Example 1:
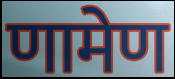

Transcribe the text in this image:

णामेण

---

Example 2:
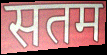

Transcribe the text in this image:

सतम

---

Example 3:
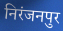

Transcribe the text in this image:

निरंजनपुर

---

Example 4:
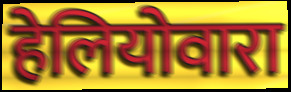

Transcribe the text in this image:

हेलियोवारा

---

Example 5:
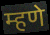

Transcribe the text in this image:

म्हणे